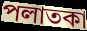
পলাতকা